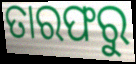
ତାରଫରୁ